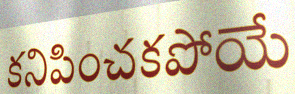
కనిపించకపోయే